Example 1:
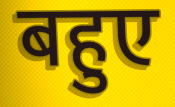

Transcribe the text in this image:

बहुए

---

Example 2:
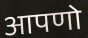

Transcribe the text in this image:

आपणो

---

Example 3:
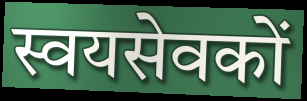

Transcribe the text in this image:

स्वयसेवकों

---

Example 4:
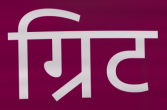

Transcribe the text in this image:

ग्रिट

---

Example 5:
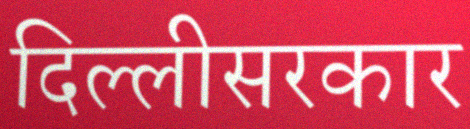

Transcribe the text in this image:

दिल्लीसरकार